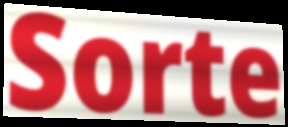
Sorte